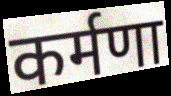
कर्मणा